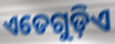
ଏତେଗୁଡ଼ିଏ